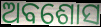
ଅବଶୋସ